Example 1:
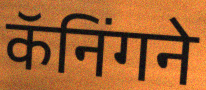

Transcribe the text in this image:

कॅनिंगने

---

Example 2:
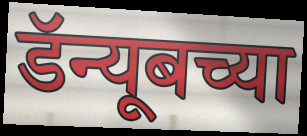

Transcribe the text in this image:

डॅन्यूबच्या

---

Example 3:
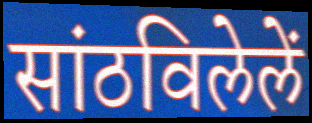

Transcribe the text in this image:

सांठविलेलें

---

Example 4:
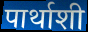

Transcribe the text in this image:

पार्थाशी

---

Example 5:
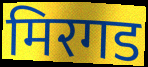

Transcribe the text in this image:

मिरगड